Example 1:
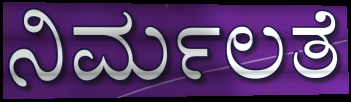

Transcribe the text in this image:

ನಿರ್ಮಲತೆ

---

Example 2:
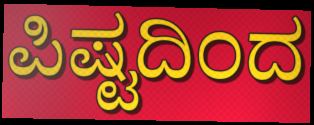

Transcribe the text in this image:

ಪಿಷ್ಟದಿಂದ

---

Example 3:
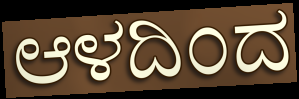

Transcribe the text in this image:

ಆಳದಿಂದ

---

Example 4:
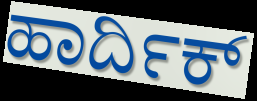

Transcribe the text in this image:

ಹಾರ್ದಿಕ್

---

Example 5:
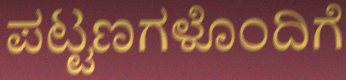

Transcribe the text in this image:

ಪಟ್ಟಣಗಳೊಂದಿಗೆ